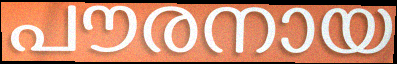
പൗരനായ